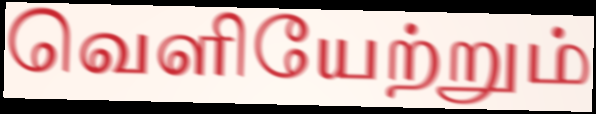
வெளியேற்றும்